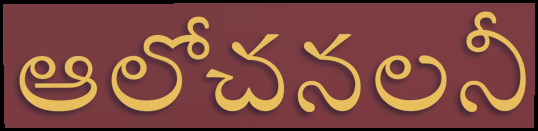
ఆలోచనలనీ